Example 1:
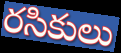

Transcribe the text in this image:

రసికులు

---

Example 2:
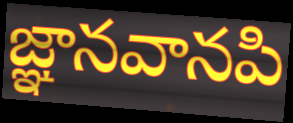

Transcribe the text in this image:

జ్ఞానవానపి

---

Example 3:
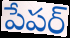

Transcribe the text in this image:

పేపర్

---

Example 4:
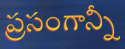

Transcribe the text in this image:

ప్రసంగాన్నీ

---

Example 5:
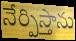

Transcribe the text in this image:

నేర్పిస్తాను